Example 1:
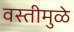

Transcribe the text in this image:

वस्तीमुळे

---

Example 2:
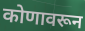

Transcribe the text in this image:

कोणावरून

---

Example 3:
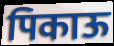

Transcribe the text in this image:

पिकाऊ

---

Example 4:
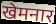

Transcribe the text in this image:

खेमनार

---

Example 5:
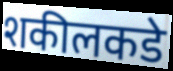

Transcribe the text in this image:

शकीलकडे